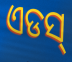
ଏଡସ୍